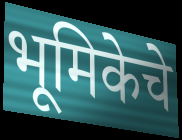
भूमिकेचे